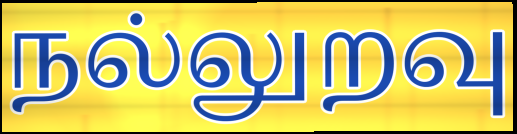
நல்லுறவு